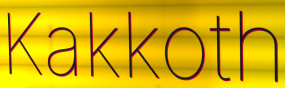
Kakkoth